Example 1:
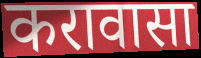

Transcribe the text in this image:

करावासा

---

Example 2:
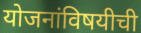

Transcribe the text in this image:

योजनांविषयीची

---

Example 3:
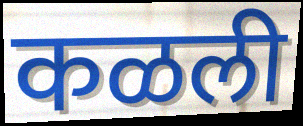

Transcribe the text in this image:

कळली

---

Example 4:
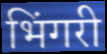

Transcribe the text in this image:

भिंगरी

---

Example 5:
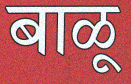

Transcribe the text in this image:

बाळू